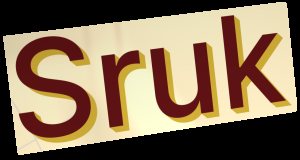
Sruk